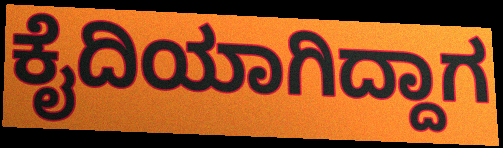
ಕೈದಿಯಾಗಿದ್ದಾಗ